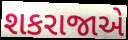
શકરાજાએ